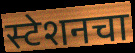
स्टेशनचा